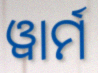
ୱାର୍ମ